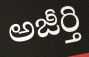
అజీర్తి